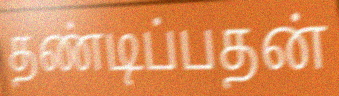
தண்டிப்பதன்